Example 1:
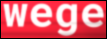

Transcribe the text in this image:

wege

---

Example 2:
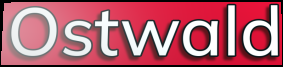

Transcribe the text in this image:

Ostwald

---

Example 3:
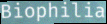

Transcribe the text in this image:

Biophilia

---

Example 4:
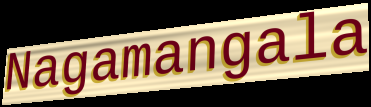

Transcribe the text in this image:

Nagamangala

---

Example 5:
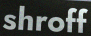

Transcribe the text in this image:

shroff